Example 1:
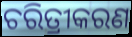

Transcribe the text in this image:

ଚରିତ୍ରୀକରଣ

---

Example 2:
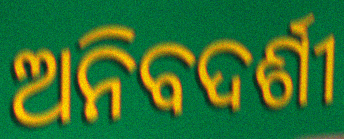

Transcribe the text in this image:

ଅନିବଦର୍ଶୀ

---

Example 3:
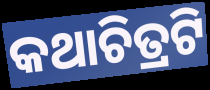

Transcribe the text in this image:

କଥାଚିତ୍ରଟି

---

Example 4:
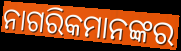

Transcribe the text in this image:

ନାଗରିକମାନଙ୍କର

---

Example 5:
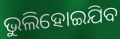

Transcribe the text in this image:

ଭୁଲିହୋଇଯିବ